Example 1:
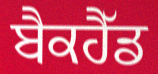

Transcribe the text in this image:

ਬੈਕਹੈੱਡ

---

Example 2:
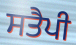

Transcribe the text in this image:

ਸਤੈਪੀ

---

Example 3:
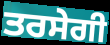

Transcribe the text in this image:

ਤਰਸੇਗੀ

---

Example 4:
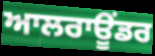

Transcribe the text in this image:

ਆਲਰਾਊਂਡਰ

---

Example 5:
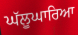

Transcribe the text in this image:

ਘੱਲੂਘਾਰਿਆ